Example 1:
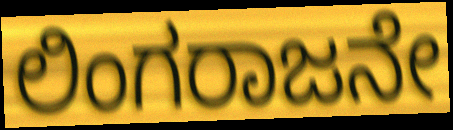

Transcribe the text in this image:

ಲಿಂಗರಾಜನೇ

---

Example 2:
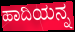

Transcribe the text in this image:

ಹಾದಿಯನ್ನ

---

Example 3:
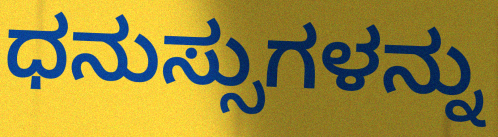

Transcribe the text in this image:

ಧನುಸ್ಸುಗಳನ್ನು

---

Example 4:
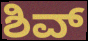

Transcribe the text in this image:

ಶಿವ್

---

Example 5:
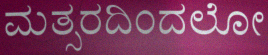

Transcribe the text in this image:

ಮತ್ಸರದಿಂದಲೋ